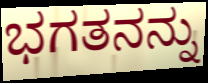
ಭಗತನನ್ನು